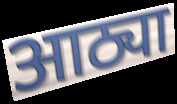
आठ्या